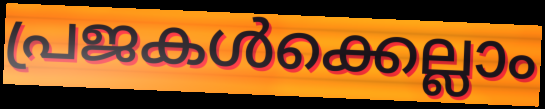
പ്രജകൾക്കെല്ലാം